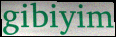
gibiyim